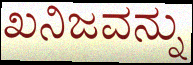
ಖನಿಜವನ್ನು